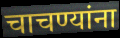
चाचण्यांना